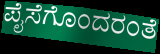
ಪೈಸೆಗೊಂದರಂತೆ